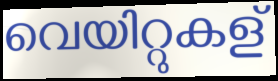
വെയിറ്റുകള്